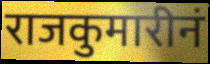
राजकुमारीनं